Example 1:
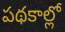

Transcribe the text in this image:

పథకాల్లో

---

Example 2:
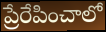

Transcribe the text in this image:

ప్రేరేపించాలో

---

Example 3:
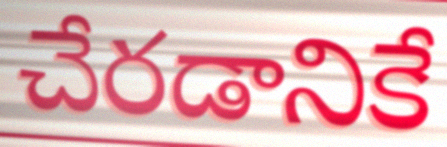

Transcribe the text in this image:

చేరడానికే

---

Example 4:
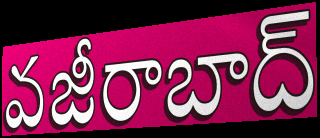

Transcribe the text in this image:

వజీరాబాద్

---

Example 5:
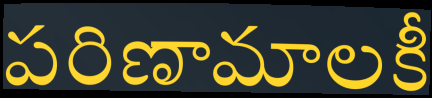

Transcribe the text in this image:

పరిణామాలకీ